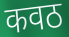
कवठ